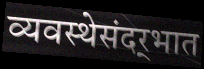
व्यवस्थेसंदर्भात